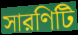
সারণিটি